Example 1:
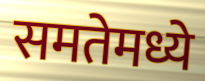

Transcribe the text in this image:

समतेमध्ये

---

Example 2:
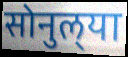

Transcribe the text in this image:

सोनुल्या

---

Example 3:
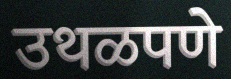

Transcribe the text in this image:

उथळपणे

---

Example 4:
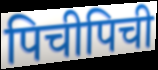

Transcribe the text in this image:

पिचीपिची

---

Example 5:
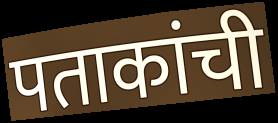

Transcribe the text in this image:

पताकांची